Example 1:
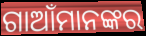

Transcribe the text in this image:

ଗାଆଁମାନଙ୍କର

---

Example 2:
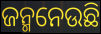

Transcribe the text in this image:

ଜନ୍ମନେଉଛି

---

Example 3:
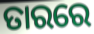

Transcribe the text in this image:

ତାରରେ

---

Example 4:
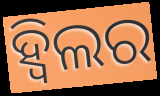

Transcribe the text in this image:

ହ୍ୱିଲର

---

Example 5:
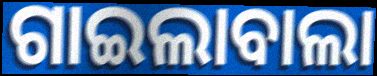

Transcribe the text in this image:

ଗାଇଲାବାଲା